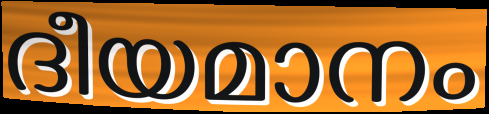
ദീയമാനം